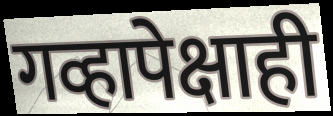
गव्हापेक्षाही